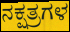
ನಕ್ಷತ್ರಗಳ